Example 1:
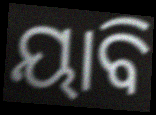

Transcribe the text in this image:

ୟାବି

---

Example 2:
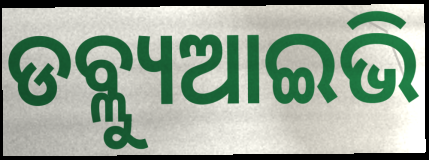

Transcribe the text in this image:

ଡବ୍ଲ୍ୟୁଆଇଭି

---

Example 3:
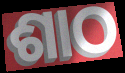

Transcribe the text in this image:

ଶାଠ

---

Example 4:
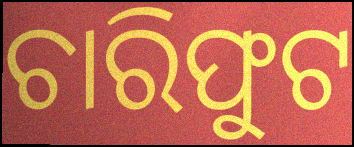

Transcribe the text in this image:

ଚାରିଫୁଟ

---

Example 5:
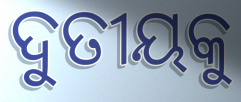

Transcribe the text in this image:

ଦୁତୀୟକୁ